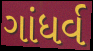
ગાંધર્વ